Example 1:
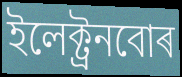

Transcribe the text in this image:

ইলেক্ট্ৰনবোৰ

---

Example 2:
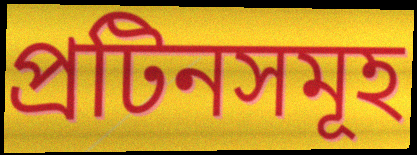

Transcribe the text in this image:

প্ৰটিনসমূহ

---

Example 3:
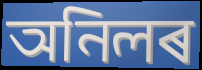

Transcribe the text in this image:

অনিলৰ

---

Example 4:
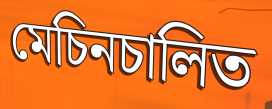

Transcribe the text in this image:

মেচিনচালিত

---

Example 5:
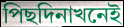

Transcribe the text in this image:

পিছদিনাখনেই